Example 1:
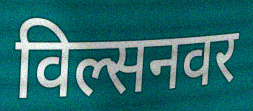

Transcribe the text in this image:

विल्सनवर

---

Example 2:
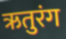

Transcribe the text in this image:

ऋतुरंग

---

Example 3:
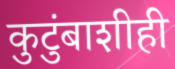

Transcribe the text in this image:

कुटुंबाशीही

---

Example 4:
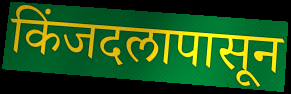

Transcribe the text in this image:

किंजदलापासून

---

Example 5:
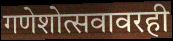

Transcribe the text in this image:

गणेशोत्सवावरही